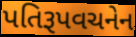
પતિરૂપવચનેન